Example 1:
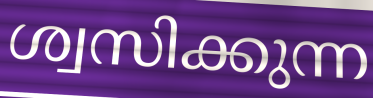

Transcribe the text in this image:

ശ്വസിക്കുന്ന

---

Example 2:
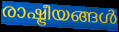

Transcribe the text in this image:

രാഷ്ട്രീയങ്ങൾ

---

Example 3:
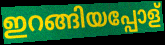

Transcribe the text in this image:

ഇറങ്ങിയപ്പോള്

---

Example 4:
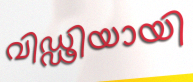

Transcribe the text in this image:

വിഡ്ഢിയായി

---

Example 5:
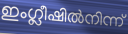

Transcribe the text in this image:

ഇംഗ്ലീഷിൽനിന്ന്